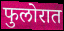
फुलोरात